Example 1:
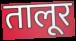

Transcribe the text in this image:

तालूर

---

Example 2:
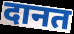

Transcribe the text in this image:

दानत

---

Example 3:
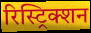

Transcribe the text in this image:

रिस्ट्रिक्शन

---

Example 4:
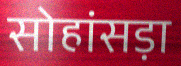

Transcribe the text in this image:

सोहांसड़ा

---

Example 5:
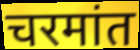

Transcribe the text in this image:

चरमांत